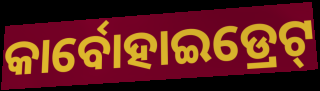
କାର୍ବୋହାଇଡ୍ରେଟ୍